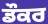
ਡੌਕਰ